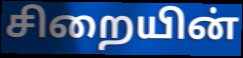
சிறையின்